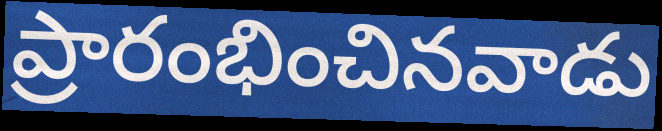
ప్రారంభించినవాడు